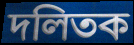
দলিতক